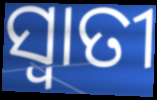
ସ୍ୱାତୀ